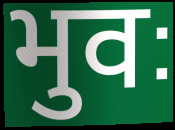
भुवः